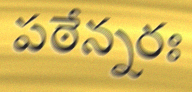
పఠేన్నరః